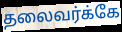
தலைவர்க்கே